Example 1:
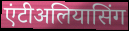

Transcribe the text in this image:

एंटीअलियासिंग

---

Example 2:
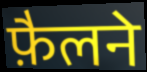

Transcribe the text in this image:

फ़ैलने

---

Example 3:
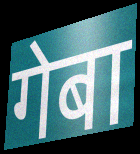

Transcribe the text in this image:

गेबा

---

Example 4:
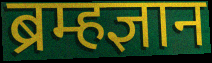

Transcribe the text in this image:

ब्रम्हज्ञान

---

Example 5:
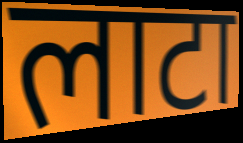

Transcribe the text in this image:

लाटा